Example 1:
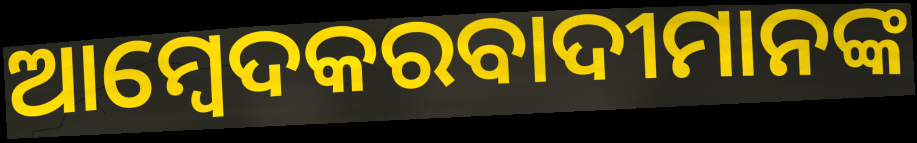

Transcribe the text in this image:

ଆମ୍ବେଦକରବାଦୀମାନଙ୍କ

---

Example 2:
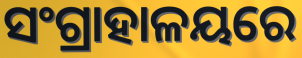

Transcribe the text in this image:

ସଂଗ୍ରାହାଳୟରେ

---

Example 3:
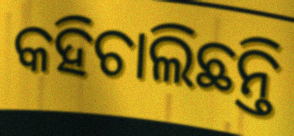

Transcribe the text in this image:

କହିଚାଲିଛନ୍ତି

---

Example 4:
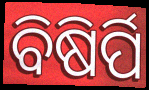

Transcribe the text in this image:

ବିଷିର୍ପି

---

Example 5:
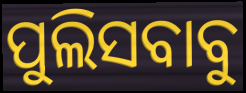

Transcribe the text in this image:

ପୁଲିସବାବୁ